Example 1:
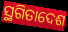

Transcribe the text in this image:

ସ୍ଥଗିତାଦେଶ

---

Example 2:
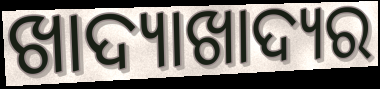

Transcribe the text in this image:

ଖାଦ୍ୟାଖାଦ୍ୟର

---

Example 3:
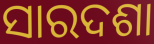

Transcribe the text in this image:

ସାରଦଶା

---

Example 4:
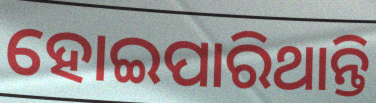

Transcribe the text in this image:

ହୋଇପାରିଥାନ୍ତି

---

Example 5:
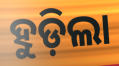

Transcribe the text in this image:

ହୁଡ଼ିଲା